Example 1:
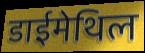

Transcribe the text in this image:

डाईमेथिल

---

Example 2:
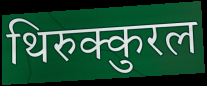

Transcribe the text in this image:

थिरुक्कुरल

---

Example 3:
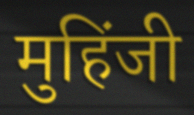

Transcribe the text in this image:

मुहिंजी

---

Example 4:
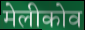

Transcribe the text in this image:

मेलीकोव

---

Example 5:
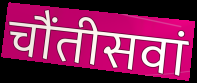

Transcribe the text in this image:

चौंतीसवां